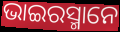
ଭାଇରସ୍ମାନେ